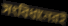
সংবিধানেরই